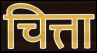
चित्ता